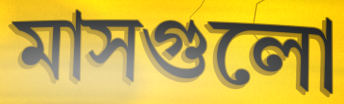
মাসগুলো